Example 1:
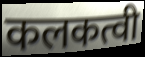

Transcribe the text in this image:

कलकत्वी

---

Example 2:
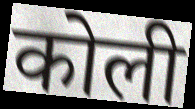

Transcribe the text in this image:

कोली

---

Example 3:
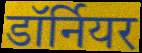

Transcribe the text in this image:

डॉर्नियर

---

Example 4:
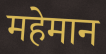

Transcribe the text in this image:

महेमान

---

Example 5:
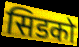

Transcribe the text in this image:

सिडको